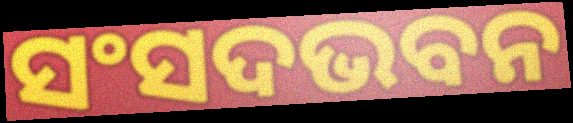
ସଂସଦଭବନ